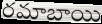
రమాబాయి